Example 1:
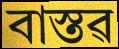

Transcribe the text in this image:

বাস্তৱ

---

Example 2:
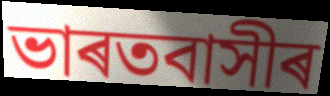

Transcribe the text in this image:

ভাৰতবাসীৰ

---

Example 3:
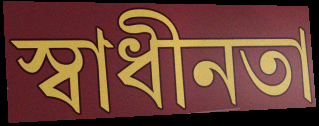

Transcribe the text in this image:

স্বাধীনতা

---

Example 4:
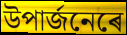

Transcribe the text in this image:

উপাৰ্জনেৰে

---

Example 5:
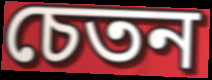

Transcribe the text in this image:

চেতন